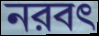
নরবৎ